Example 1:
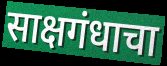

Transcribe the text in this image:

साक्षगंधाचा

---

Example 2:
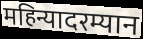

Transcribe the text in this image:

महिन्यादरम्यान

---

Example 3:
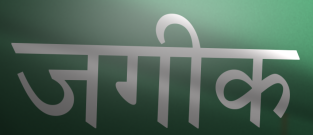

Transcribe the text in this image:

जगीक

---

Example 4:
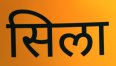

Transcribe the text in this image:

सिला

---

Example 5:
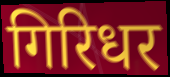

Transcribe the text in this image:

गिरिधर